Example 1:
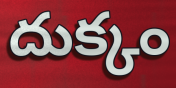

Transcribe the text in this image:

దుక్కం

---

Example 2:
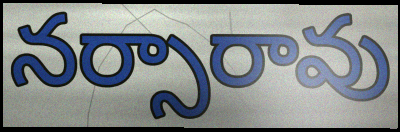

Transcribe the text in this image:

నర్సారావు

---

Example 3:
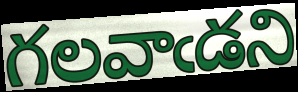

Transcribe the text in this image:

గలవాఁడని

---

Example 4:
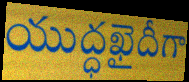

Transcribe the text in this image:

యుద్ధఖైదీగా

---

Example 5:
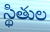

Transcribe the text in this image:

స్థితుల